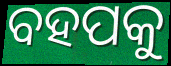
ବହପକୁ